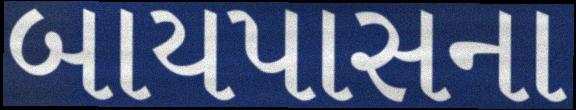
બાયપાસના